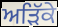
ਅੜਿੱਕੇ